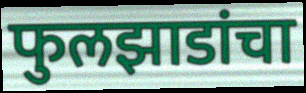
फुलझाडांचा